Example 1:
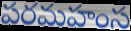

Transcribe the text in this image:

పరమహంస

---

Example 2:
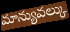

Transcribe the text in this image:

మాన్యువల్కు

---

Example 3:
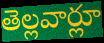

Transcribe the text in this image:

తెల్లవార్లూ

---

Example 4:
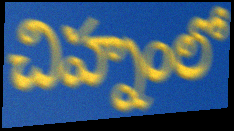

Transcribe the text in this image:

చిహ్నంలో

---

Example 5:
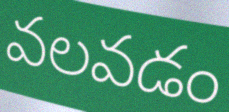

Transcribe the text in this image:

వలవడం